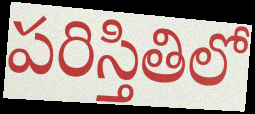
పరిస్తితిలో